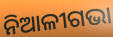
ନିଆଳୀଗଭା